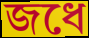
জধে